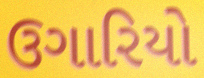
ઉગારિયો